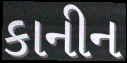
કાનીન